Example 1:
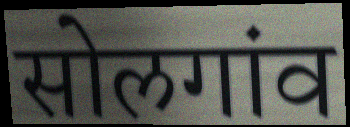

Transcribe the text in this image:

सोलगांव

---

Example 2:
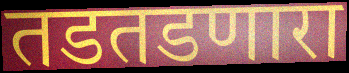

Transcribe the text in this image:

तडतडणारा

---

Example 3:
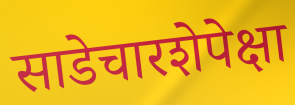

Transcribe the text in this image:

साडेचारशेपेक्षा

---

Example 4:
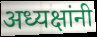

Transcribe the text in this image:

अध्यक्षांनी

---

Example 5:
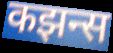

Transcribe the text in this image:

कझन्स